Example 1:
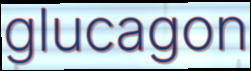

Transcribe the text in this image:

glucagon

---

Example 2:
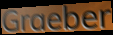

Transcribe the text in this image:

Graeber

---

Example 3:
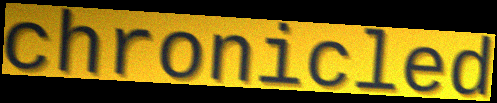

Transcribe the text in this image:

chronicled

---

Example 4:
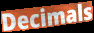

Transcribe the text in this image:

Decimals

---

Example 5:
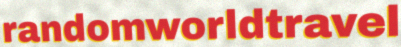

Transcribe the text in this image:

randomworldtravel